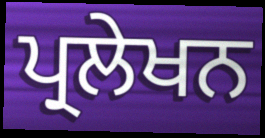
ਪ੍ਰਲੇਖਨ